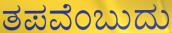
ತಪವೆಂಬುದು